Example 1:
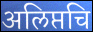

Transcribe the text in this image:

अलिप्तचि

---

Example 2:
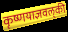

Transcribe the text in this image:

कृष्णयाज्ञवल्की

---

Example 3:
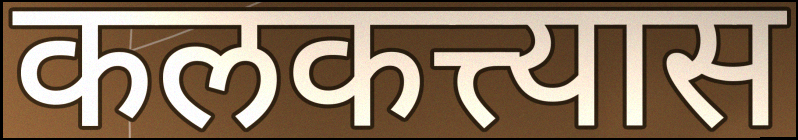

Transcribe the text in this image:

कलकत्त्यास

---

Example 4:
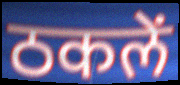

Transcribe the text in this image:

ठकलें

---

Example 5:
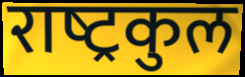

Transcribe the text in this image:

राष्ट्रकुल